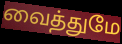
வைத்துமே